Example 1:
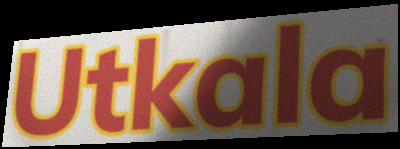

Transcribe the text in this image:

Utkala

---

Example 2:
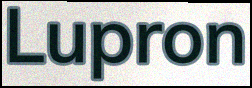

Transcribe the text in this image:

Lupron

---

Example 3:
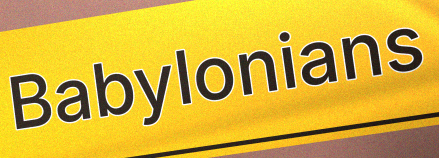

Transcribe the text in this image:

Babylonians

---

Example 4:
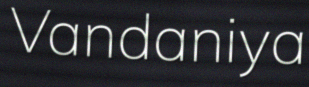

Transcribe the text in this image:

Vandaniya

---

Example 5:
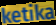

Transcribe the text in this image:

ketika